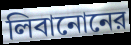
লিবানোনের